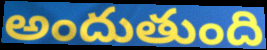
అందుతుంది